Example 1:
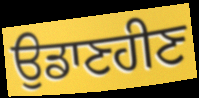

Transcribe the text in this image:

ਉਡਾਣਹੀਣ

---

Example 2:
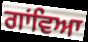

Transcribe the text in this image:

ਗਾਂਵਿਆ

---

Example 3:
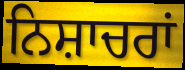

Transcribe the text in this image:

ਨਿਸ਼ਾਚਰਾਂ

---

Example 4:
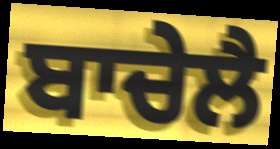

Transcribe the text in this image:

ਬਾਚੇਲੈ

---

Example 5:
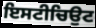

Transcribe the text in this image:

ਇਸਟੀਚਿਉਟ